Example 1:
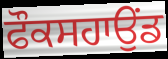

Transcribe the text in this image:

ਫੌਕਸਹਾਉਂਡ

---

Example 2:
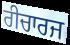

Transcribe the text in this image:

ਰੀਚਾਰਜ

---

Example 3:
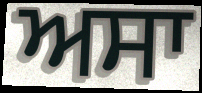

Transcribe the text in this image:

ਅਸਾ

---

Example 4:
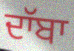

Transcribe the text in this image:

ਦਾੱਬਾ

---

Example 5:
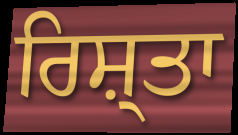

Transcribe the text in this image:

ਰਿਸ਼੍ਤਾ